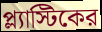
প্ল্যাস্টিকের